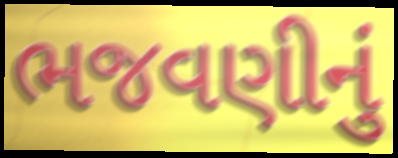
ભજવણીનું